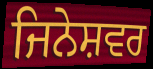
ਜਿਨੇਸ਼ਵਰ